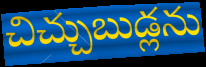
చిచ్చుబుడ్లను